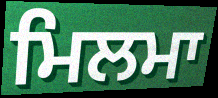
ਮਿਲਮਾ